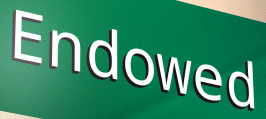
Endowed